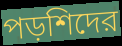
পড়শিদের